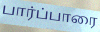
பார்ப்பாரை